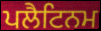
ਪਲੈਟਿਨਮ